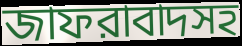
জাফরাবাদসহ